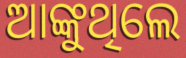
ଆଙ୍କୁଥିଲେ